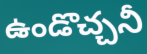
ఉండొచ్చనీ